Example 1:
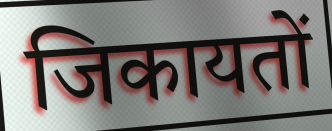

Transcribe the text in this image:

जिकायतों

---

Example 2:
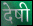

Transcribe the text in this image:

देषी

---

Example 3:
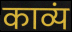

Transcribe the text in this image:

काव्यं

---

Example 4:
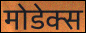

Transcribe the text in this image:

मोडेक्स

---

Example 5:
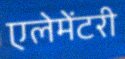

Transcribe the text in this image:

एलेमेंटरी